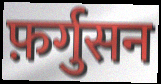
फ़र्गुसन